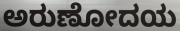
ಅರುಣೋದಯ